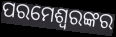
ପରମେଶ୍ୱରଙ୍କର